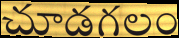
చూడగలం